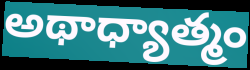
అథాధ్యాత్మం